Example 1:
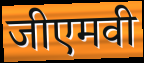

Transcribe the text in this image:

जीएमवी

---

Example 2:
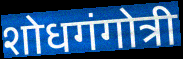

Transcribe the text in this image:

शोधगंगोत्री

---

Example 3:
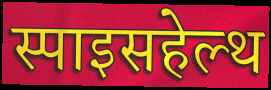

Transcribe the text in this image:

स्पाइसहेल्थ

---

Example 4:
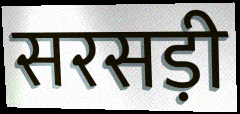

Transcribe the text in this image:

सरसड़ी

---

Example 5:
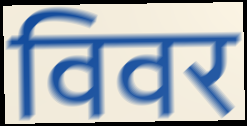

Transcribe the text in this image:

विवर